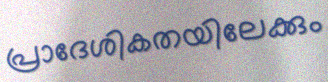
പ്രാദേശികതയിലേക്കും